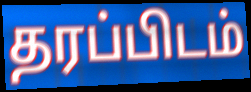
தரப்பிடம்